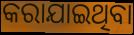
କରାଯାଇଥିବା